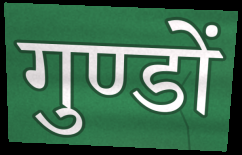
गुण्डों